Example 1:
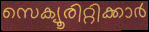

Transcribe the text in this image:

സെക്യൂരിറ്റിക്കാർ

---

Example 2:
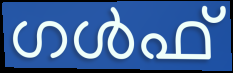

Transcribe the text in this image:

ഗൾഫ്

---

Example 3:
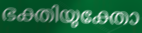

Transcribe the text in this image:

ഭക്തിയുക്തോ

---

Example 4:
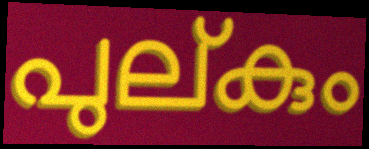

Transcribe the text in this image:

പുല്കും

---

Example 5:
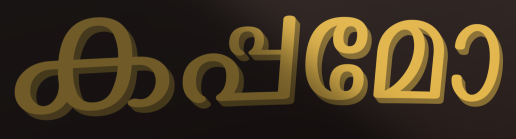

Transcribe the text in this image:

കപ്പമോ